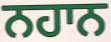
ਨਹਾਨ